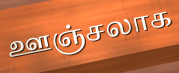
ஊஞ்சலாக